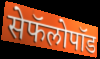
सेफॅलोपॉड